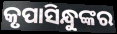
କୃପାସିନ୍ଧୁଙ୍କର